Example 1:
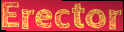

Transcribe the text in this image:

Erector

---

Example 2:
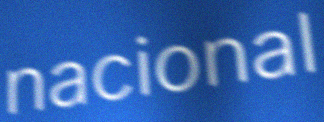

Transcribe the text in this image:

nacional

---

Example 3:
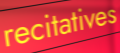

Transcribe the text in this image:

recitatives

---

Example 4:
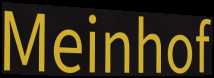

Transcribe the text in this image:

Meinhof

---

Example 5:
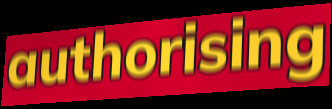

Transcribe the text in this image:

authorising